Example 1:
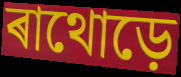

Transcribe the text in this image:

ৰাথোড়ে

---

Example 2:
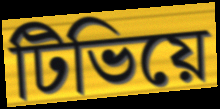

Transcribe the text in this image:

টিভিয়ে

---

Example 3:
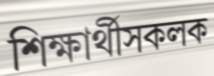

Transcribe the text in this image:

শিক্ষাৰ্থীসকলক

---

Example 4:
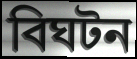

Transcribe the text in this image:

বিঘটন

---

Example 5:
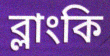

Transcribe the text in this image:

ব্লাংকি